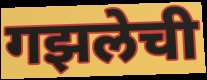
गझलेची